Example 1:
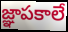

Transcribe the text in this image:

జ్ఞాపకాలే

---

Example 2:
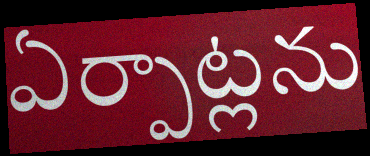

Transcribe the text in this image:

ఏర్పాట్లను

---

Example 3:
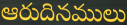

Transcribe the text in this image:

ఆరుదినములు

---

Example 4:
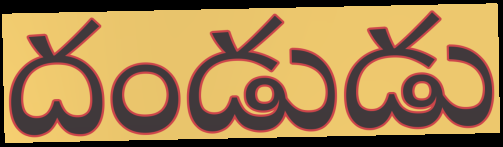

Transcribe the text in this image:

దండుడు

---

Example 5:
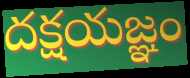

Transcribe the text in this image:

దక్షయజ్ఞం